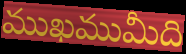
ముఖముమీది